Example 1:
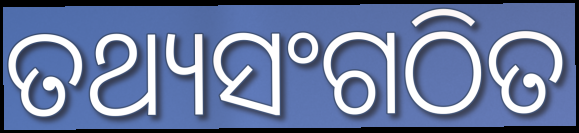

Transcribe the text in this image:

ତଥ୍ୟସଂଗଠିତ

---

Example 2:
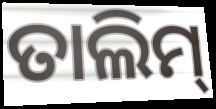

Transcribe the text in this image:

ତାଲିମ୍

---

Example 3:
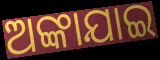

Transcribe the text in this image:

ଅଙ୍କାଯାଇ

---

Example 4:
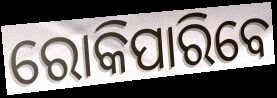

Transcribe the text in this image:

ରୋକିପାରିବେ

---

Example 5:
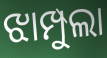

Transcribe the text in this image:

ଝାମ୍ପୁଲା